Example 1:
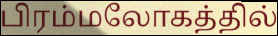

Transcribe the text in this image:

பிரம்மலோகத்தில்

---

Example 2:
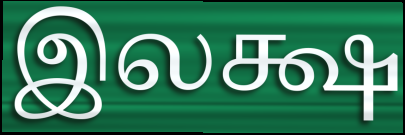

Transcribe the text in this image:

இலக்ஷ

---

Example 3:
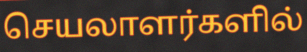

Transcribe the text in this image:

செயலாளர்களில்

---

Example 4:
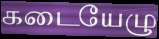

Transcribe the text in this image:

கடையேழு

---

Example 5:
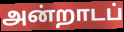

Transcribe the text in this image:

அன்றாடப்